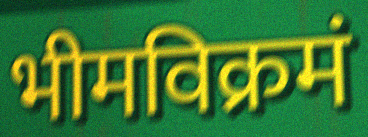
भीमविक्रमं